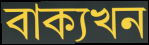
বাক্যখন